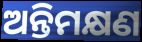
ଅନ୍ତିମକ୍ଷଣ